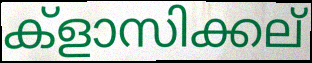
ക്ളാസിക്കല്